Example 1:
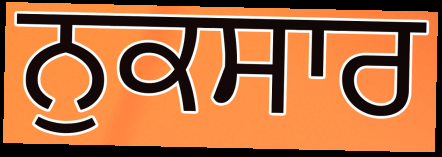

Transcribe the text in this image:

ਨੁਕਸਾਰ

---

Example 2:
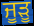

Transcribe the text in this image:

ਜੂੜੂ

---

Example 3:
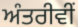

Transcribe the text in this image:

ਅੰਤਰੀਵੀਂ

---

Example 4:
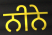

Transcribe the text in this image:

ਨੀਨੇ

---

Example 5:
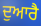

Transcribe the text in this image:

ਦੁਆਰੈ